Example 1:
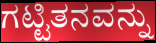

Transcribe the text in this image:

ಗಟ್ಟಿತನವನ್ನು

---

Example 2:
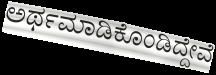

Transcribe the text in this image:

ಅರ್ಥಮಾಡಿಕೊಂಡಿದ್ದೇವೆ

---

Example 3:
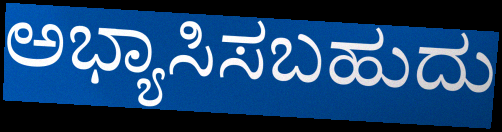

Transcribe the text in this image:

ಅಭ್ಯಾಸಿಸಬಹುದು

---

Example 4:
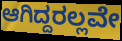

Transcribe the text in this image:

ಆಗಿದ್ದರಲ್ಲವೇ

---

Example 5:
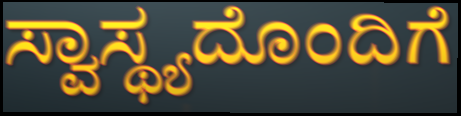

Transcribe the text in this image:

ಸ್ವಾಸ್ಥ್ಯದೊಂದಿಗೆ